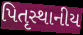
પિતૃસ્થાનીય